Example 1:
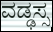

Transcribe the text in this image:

ವಡ್ಢಸ್ಸ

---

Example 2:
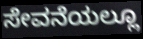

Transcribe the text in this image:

ಸೇವನೆಯಲ್ಲೂ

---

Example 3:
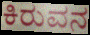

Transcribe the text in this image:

ಕಿರುವನ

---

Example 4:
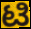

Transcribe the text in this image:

ಟಿ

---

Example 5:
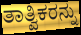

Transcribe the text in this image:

ತಾತ್ವಿಕರನ್ನು